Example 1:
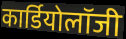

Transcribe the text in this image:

कार्डियोलॉजी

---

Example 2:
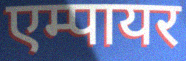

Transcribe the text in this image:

एम्पायर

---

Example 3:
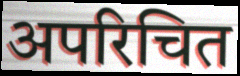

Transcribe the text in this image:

अपरिचित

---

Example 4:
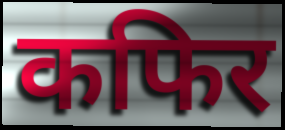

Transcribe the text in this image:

कफिर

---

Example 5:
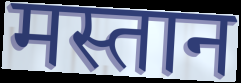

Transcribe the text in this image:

मस्तान